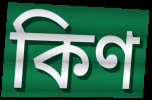
কিণ